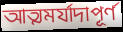
আত্মমর্যাদাপূর্ণ